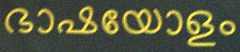
ഭാഷയോളം